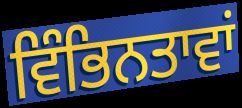
ਵਿੰਭਿਨਤਾਵਾਂ